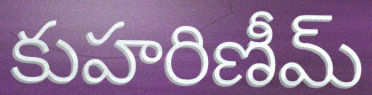
కుహరిణీమ్